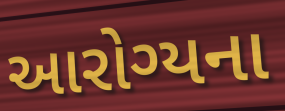
આરોગ્યના